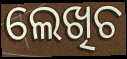
ଲେଖିଚ